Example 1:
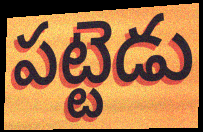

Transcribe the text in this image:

పట్టెడు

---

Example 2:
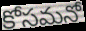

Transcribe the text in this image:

కోసమనో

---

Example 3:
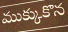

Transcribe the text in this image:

ముక్కుకొన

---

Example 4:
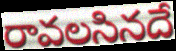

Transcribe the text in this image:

రావలసినదే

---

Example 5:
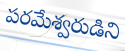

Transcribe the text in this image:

పరమేశ్వరుడిని